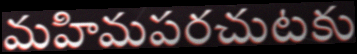
మహిమపరచుటకు